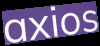
axios